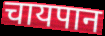
चायपान